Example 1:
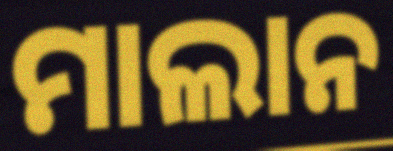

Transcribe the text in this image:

ମାଲାନ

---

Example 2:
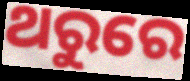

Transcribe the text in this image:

ଥରୁରେ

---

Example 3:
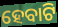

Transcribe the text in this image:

ହେବାଟି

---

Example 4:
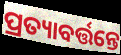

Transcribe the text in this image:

ପ୍ରତ୍ୟାବର୍ତ୍ତନ୍ତେ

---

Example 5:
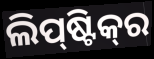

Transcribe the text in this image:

ଲିପ୍‌ଷ୍ଟିକ୍‌ର